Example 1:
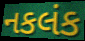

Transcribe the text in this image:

નકલંક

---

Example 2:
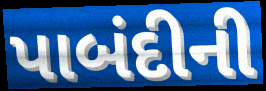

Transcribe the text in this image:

પાબંદીની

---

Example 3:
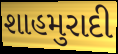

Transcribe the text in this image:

શાહમુરાદી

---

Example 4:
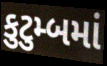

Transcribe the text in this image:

કુટુમ્બમાં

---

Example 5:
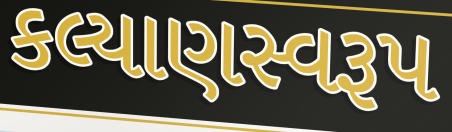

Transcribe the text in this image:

કલ્યાણસ્વરૂપ